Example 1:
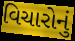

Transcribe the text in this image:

વિચારોનું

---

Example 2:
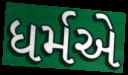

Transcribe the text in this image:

ધર્મએ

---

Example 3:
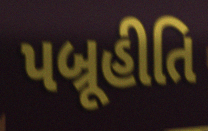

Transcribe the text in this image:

પબ્રૂહીતિ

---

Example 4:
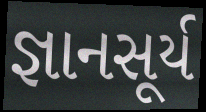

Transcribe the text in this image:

જ્ઞાનસૂર્ય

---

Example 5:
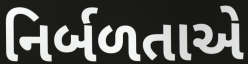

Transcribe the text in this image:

નિર્બળતાએ